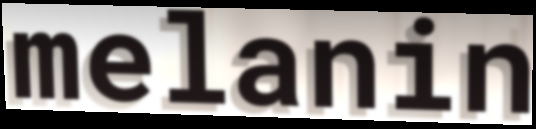
melanin